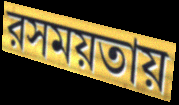
রসময়তায়